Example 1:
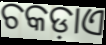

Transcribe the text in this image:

ଚକଡ଼ାଏ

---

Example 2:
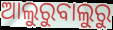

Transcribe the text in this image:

ଆଲୁରୁବାଲୁରୁ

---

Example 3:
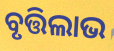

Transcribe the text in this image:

ବୃତ୍ତିଲାଭ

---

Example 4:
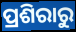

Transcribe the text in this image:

ପ୍ରଶିରାରୁ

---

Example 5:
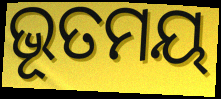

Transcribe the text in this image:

ଭୂତମୟ